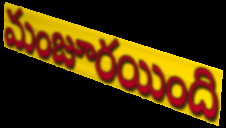
మంజూరయింది